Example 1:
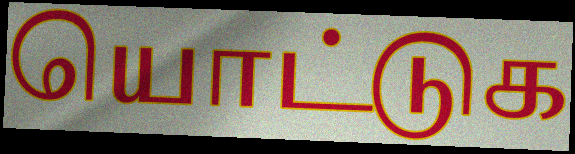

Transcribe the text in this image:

யொட்டுக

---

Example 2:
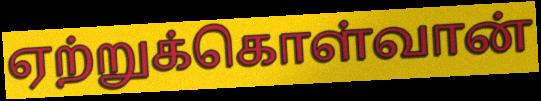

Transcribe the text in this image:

ஏற்றுக்கொள்வான்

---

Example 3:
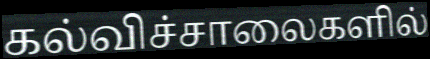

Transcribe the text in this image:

கல்விச்சாலைகளில்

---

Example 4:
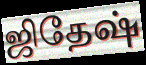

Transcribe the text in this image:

ஜிதேஷ்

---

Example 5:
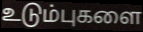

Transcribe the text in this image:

உடும்புகளை